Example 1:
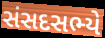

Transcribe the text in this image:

સંસદસભ્યે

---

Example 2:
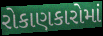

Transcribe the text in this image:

રોકાણકારોમાં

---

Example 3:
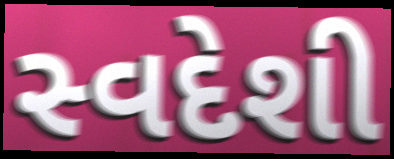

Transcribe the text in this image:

સ્વદેશી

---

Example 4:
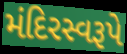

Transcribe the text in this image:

મંદિરસ્વરૂપે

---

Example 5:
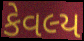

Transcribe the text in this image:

કેવલ્ય